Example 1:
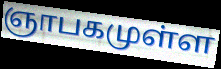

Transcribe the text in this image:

ஞாபகமுள்ள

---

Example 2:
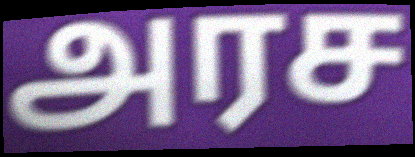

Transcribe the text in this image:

அரச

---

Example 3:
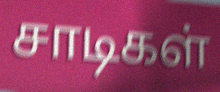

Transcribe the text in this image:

சாடிகள்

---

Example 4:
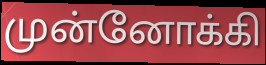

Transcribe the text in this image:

முன்னோக்கி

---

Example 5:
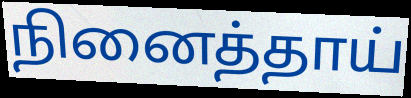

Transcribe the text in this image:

நினைத்தாய்